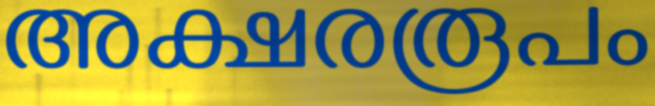
അക്ഷരരൂപം